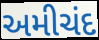
અમીચંદ